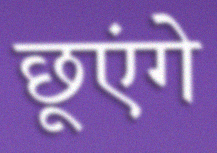
छूएंगे